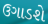
ઉગાડશે